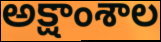
అక్షాంశాల